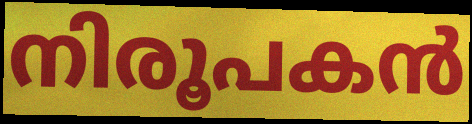
നിരൂപകൻ